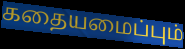
கதையமைப்பும்